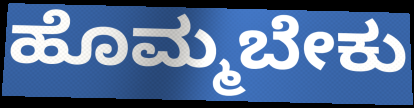
ಹೊಮ್ಮಬೇಕು